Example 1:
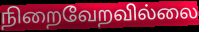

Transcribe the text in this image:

நிறைவேறவில்லை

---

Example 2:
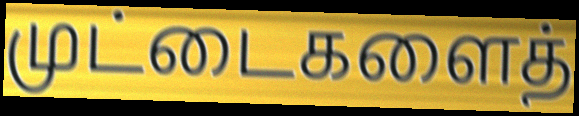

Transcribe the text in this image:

முட்டைகளைத்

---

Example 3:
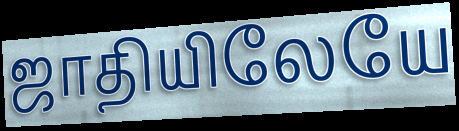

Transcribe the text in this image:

ஜாதியிலேயே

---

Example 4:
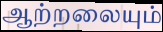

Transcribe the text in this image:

ஆற்றலையும்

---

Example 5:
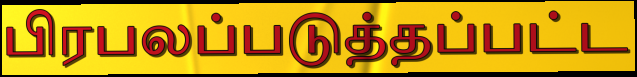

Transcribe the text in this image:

பிரபலப்படுத்தப்பட்ட